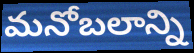
మనోబలాన్ని